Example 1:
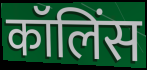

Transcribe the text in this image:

कॉलिंस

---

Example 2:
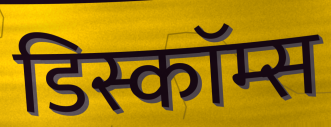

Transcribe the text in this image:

डिस्कॉम्स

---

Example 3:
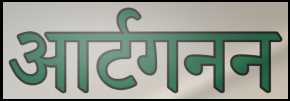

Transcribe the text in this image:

आर्टगनन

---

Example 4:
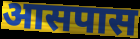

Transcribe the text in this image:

आसपास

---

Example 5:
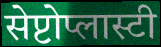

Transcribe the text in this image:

सेप्टोप्लास्टी